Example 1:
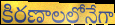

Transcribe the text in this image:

కిరణాలలోనేగా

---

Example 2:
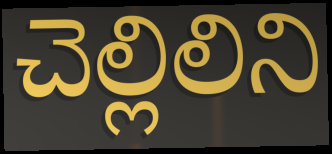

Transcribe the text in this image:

చెల్లిలిని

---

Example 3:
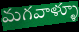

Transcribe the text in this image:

మగవాళ్ళూ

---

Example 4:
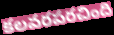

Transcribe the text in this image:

కలవరపరచింది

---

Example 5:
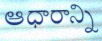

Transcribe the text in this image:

ఆధారాన్ని